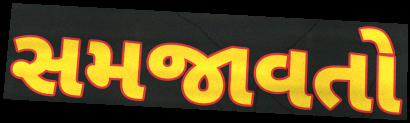
સમજાવતો